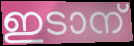
ഇടാന്